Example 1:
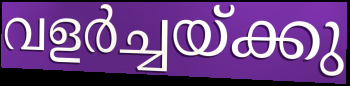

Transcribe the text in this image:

വളർച്ചയ്ക്കു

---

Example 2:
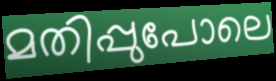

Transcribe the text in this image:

മതിപ്പുപോലെ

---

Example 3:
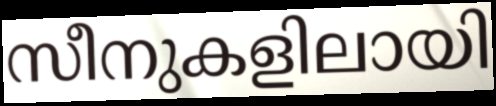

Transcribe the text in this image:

സീനുകളിലായി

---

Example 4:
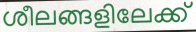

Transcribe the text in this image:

ശീലങ്ങളിലേക്ക്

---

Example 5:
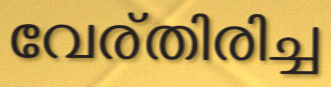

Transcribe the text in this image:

വേര്തിരിച്ച